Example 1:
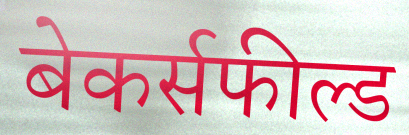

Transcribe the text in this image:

बेकर्सफील्ड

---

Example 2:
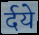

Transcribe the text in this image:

र्दये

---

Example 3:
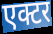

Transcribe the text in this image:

एक्टर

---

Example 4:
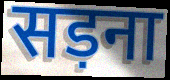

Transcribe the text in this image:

सड़ना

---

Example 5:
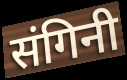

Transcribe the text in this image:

संगिनी